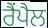
ਰੈਂਪੈਲ